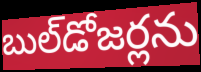
బుల్‌డోజర్లను